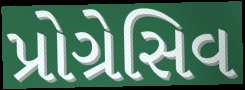
પ્રોગ્રેસિવ